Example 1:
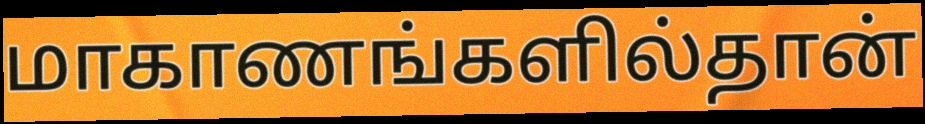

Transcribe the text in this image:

மாகாணங்களில்தான்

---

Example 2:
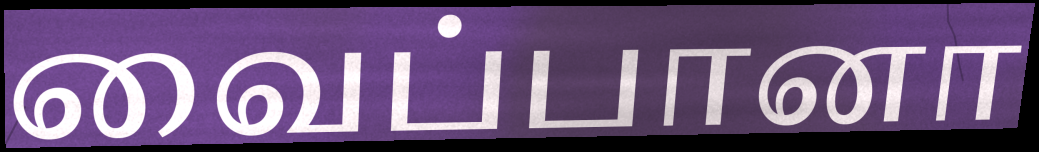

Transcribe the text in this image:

வைப்பானா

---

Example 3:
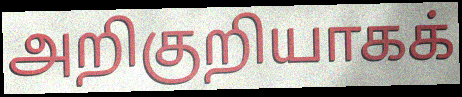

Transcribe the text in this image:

அறிகுறியாகக்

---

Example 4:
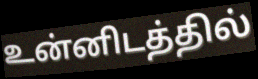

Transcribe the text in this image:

உன்னிடத்தில்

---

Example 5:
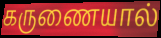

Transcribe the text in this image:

கருணையால்